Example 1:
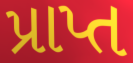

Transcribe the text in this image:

પ્રાપ્‍ત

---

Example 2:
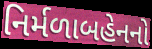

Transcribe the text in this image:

નિર્મળાબહેનનો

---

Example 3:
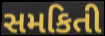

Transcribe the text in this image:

સમકિતી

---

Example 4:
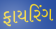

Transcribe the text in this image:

ફાયરિંગ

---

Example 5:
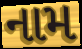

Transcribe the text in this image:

નામ